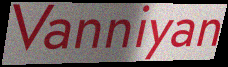
Vanniyan